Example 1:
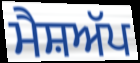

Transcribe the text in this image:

ਮੈਸ਼ਅੱਪ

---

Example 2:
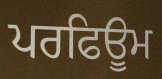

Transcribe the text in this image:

ਪਰਫਿਊਮ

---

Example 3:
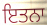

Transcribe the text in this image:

ਇਤਨਾ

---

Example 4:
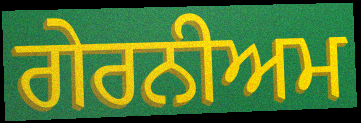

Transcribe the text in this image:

ਗੇਰਨੀਅਮ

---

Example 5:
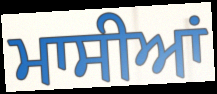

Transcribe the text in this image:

ਮਾਸੀਆਂ